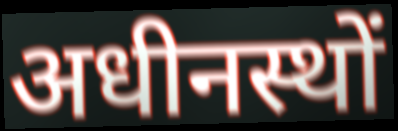
अधीनस्थों